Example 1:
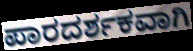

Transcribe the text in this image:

ಪಾರದರ್ಶಕವಾಗಿ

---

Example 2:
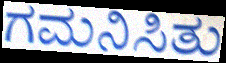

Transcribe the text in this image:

ಗಮನಿಸಿತು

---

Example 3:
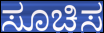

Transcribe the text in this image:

ಸೂಚಿಸ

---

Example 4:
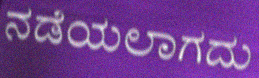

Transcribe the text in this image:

ನಡೆಯಲಾಗದು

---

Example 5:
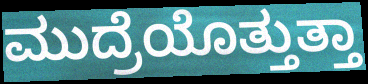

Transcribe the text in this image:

ಮುದ್ರೆಯೊತ್ತುತ್ತಾ